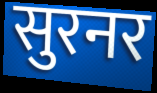
सुरनर